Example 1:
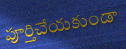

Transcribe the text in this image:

పూర్తిచేయకుండా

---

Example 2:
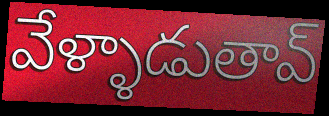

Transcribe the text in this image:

వేళ్ళాడుతావ్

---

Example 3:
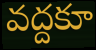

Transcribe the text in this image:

వద్దకూ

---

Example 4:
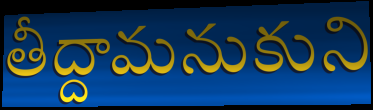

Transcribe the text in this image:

తీద్దామనుకుని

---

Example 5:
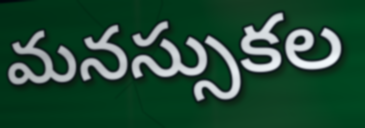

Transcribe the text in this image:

మనస్సుకల